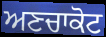
ਅਣਚਾਕੋਟ